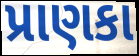
પ્રાણકા